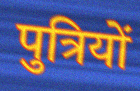
पुत्रियों